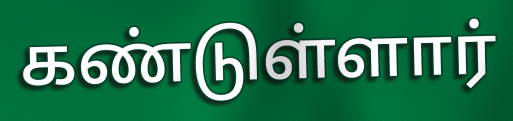
கண்டுள்ளார்